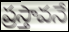
ప్రస్తావనే